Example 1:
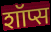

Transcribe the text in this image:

शॉप्स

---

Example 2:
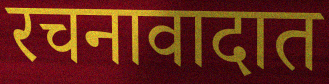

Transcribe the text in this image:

रचनावादात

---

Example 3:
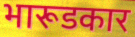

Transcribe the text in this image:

भारूडकार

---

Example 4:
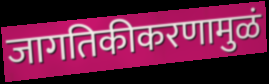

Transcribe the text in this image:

जागतिकीकरणामुळं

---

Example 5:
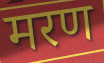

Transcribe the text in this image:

मरण